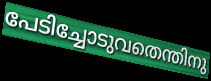
പേടിച്ചോടുവതെന്തിനു